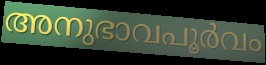
അനുഭാവപൂർവം